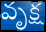
వృక్ష